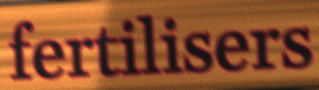
fertilisers